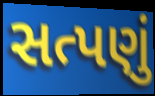
સત્પણું